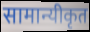
सामान्यीकृत